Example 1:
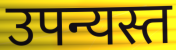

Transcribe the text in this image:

उपन्यस्त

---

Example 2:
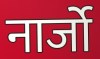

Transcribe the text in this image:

नार्जो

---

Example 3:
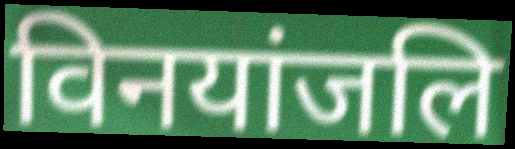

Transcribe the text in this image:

विनयांजलि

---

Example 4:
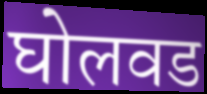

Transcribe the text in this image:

घोलवड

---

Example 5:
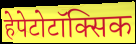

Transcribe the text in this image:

हेपेटोटॉक्सिक